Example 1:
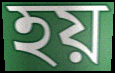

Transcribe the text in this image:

হয়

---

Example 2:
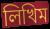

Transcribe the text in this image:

লিখিম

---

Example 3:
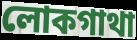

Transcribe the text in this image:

লোকগাথা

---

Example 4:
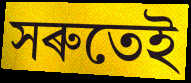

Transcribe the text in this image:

সৰুতেই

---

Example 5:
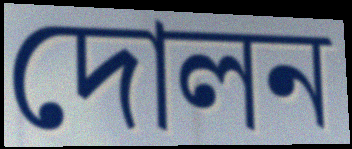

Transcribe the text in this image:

দোলন